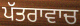
ਪੱਤਰਾਵਾਚ